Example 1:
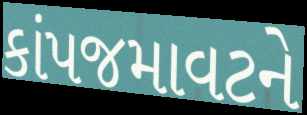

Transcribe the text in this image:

કાંપજમાવટને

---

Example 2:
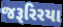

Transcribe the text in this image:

જરૂરિરયા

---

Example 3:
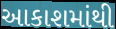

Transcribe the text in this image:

આકાશમાંથી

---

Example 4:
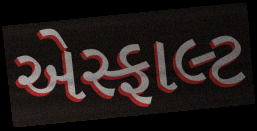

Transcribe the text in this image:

એસ્ફાલ્ટ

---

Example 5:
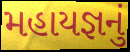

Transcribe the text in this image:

મહાયજ્ઞનું